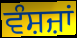
ਵੰਸ਼ਜ਼ਾਂ